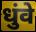
धुंवे